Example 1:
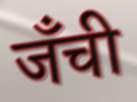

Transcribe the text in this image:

जँची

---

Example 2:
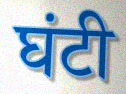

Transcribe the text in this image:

घंटी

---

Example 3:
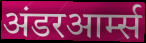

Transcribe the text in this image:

अंडरआर्म्‍स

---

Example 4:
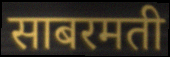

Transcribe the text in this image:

साबरमती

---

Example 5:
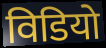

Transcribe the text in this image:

विडियो